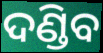
ଦଣ୍ଡିବ